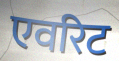
एवरिट